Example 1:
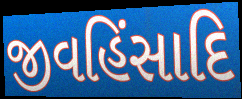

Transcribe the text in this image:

જીવહિંસાદિ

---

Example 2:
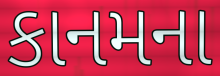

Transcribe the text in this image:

કાનમના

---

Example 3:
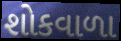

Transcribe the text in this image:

શોકવાળા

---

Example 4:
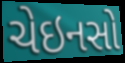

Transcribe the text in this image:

ચેઇનસો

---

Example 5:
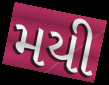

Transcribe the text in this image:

મયી